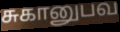
சுகானுபவ